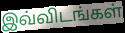
இவ்விடங்கள்